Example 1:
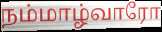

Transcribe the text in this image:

நம்மாழ்வாரோ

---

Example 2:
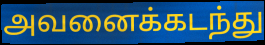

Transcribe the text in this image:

அவனைக்கடந்து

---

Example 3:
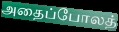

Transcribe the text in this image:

அதைப்போலத்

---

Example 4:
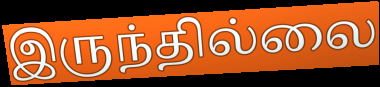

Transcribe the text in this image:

இருந்தில்லை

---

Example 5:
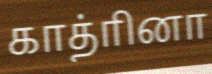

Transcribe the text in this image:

காத்ரினா